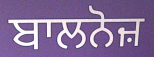
ਬਾਲਨੋਜ਼